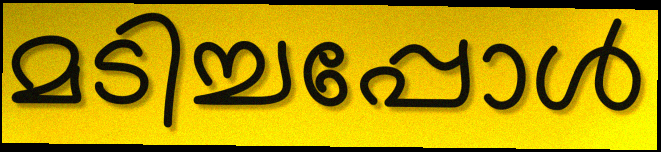
മടിച്ചപ്പോൾ